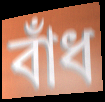
বাঁধ